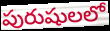
పురుషులలో